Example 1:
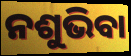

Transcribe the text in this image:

ନଶୁଭିବା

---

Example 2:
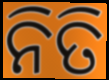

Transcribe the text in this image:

ନିତି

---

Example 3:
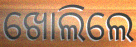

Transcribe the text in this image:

ଖୋଲିଲେ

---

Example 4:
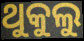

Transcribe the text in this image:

ଥୁକୁଲୁ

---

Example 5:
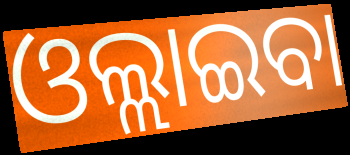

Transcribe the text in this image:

ଓଲ୍ଲାଇବା